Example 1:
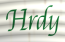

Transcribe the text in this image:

Hrdy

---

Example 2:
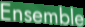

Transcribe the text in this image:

Ensemble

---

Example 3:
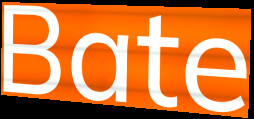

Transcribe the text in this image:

Bate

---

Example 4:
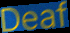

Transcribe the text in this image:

Deaf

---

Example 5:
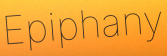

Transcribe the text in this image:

Epiphany